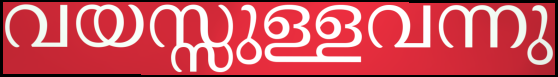
വയസ്സുള്ളവന്നു